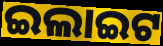
ଇଲାଇଟ